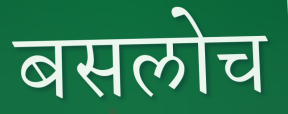
बसलोच